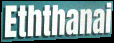
Eththanai